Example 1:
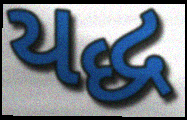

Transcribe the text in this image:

યદ્ધ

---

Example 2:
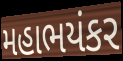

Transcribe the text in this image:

મહાભયંકર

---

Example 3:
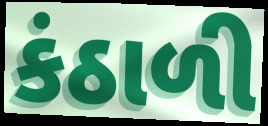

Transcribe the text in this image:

કંઠાળી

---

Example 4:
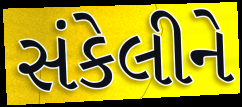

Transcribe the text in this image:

સંકેલીને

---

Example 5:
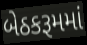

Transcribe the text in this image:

બેઠકરૂમમાં